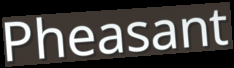
Pheasant